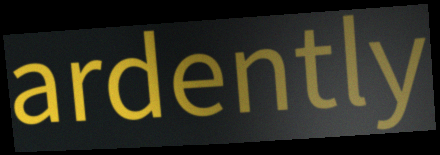
ardently